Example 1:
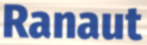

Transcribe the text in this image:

Ranaut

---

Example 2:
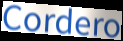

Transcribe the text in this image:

Cordero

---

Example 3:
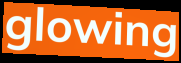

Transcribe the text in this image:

glowing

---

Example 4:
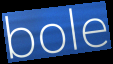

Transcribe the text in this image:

bole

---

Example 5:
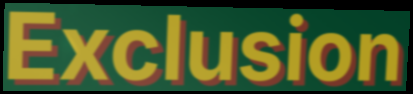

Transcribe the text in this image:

Exclusion